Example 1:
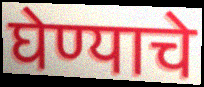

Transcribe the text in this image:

घेण्याचे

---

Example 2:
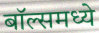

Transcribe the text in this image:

बॉल्समध्ये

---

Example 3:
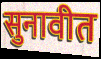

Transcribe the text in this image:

सुनावीत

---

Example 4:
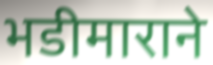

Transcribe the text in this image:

भडीमाराने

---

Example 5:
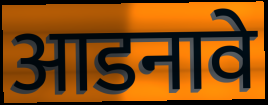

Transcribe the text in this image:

आडनावे